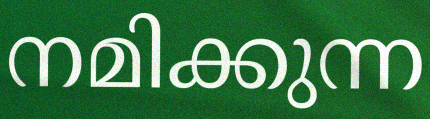
നമിക്കുന്ന